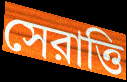
সেরাত্তি